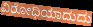
ವಿರೋಧಿಯಾದುದು